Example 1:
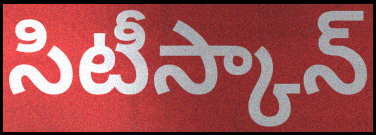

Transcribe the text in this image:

సిటీస్కాన్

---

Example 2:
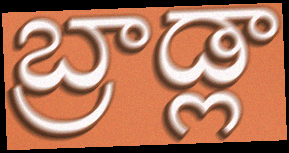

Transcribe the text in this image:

బ్రాడ్లా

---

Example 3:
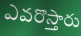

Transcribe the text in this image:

ఎవరొస్తారు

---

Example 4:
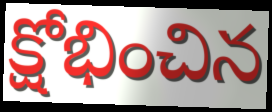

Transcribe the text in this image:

క్షోభించిన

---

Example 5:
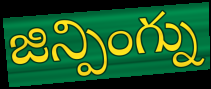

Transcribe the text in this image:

జిన్పింగ్ను